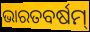
ଭାରତବର୍ଷମ୍